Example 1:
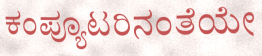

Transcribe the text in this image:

ಕಂಪ್ಯೂಟರಿನಂತೆಯೇ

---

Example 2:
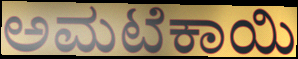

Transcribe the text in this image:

ಅಮಟೆಕಾಯಿ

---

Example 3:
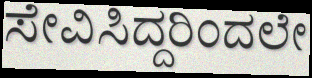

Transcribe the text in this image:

ಸೇವಿಸಿದ್ದರಿಂದಲೇ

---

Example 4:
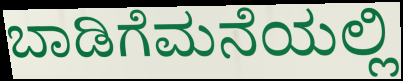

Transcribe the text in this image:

ಬಾಡಿಗೆಮನೆಯಲ್ಲಿ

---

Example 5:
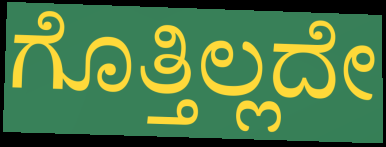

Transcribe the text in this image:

ಗೊತ್ತಿಲ್ಲದೇ